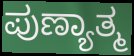
ಪುಣ್ಯಾತ್ಮ